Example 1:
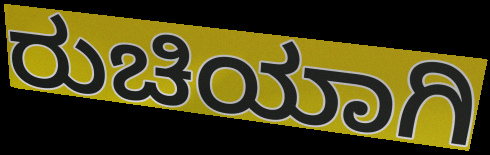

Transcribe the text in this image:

ರುಚಿಯಾಗಿ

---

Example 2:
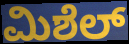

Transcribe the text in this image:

ಮಿಶೆಲ್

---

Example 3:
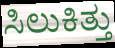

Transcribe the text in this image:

ಸಿಲುಕಿತ್ತು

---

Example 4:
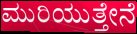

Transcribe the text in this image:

ಮುರಿಯುತ್ತೇನೆ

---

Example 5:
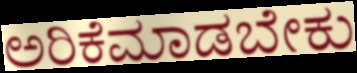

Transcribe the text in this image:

ಅರಿಕೆಮಾಡಬೇಕು